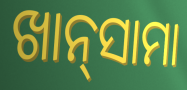
ଖାନ୍‍ସାମା